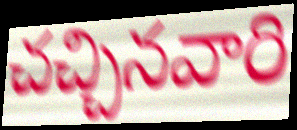
చచ్చినవారి